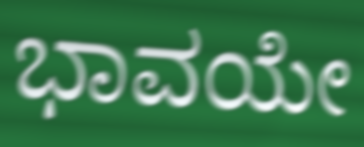
ಭಾವಯೇ